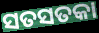
ସତସତକା